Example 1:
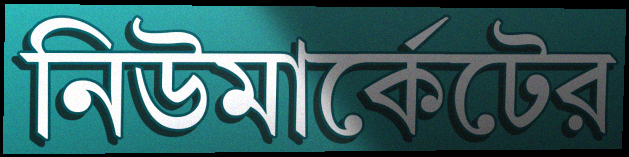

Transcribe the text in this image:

নিউমার্কেটের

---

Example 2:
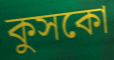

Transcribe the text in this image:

কুসকো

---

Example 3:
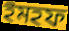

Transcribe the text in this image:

ইমহফ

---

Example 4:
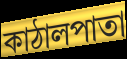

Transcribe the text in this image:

কাঠালপাতা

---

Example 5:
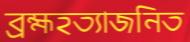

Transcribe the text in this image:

ব্রহ্মহত্যাজনিত